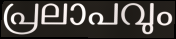
പ്രലാപവും